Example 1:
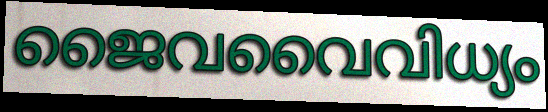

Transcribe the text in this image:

ജൈവവൈവിധ്യം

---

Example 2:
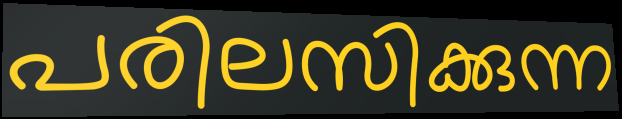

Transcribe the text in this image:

പരിലസിക്കുന്ന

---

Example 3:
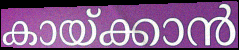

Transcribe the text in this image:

കായ്ക്കാൻ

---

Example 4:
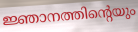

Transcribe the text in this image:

ജ്ഞാനത്തിന്റെയും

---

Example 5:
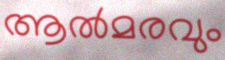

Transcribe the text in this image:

ആൽമരവും